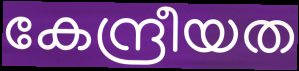
കേന്ദ്രീയത